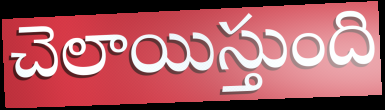
చెలాయిస్తుంది